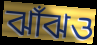
ঝাঁঝও